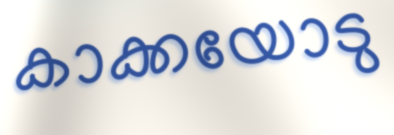
കാക്കയോടു